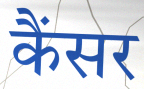
कैंसर